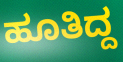
ಹೂತಿದ್ದ